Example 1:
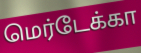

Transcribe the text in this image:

மெர்டேக்கா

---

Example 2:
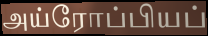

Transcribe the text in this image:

அய்ரோப்பியப்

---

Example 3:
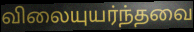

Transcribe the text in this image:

விலையுயர்ந்தவை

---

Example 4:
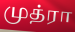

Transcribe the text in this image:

முத்ரா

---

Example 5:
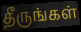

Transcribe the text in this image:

தீருங்கள்